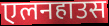
एलनहाउस